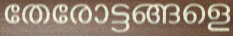
തേരോട്ടങ്ങളെ